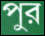
পুর